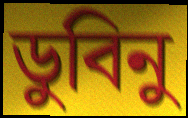
ডুবিনু